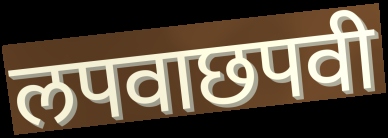
लपवाछपवी